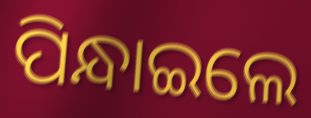
ପିନ୍ଧାଇଲେ